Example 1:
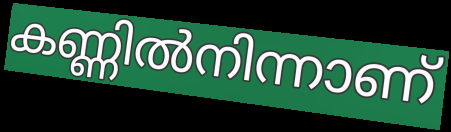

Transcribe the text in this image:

കണ്ണിൽനിന്നാണ്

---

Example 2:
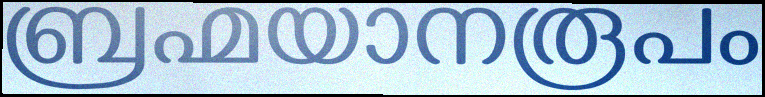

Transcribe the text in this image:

ബ്രഹ്മയാനരൂപം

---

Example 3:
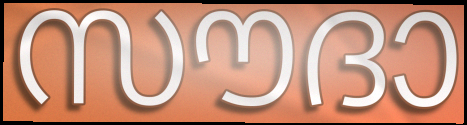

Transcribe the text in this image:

സൗദാ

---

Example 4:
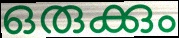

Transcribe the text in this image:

ഒരുക്കും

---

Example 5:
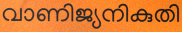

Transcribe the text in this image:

വാണിജ്യനികുതി